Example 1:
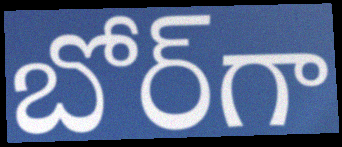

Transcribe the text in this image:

బోర్‌గా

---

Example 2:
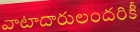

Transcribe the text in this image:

వాటాదారులందరికీ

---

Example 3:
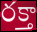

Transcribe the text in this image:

రక్తా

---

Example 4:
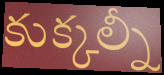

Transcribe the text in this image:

కుక్కల్నీ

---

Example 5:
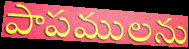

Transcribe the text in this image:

పాపములను